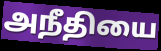
அநீதியை